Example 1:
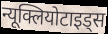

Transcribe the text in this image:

न्यूक्लियोटाइड्स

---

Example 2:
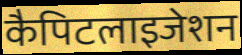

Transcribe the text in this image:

कैपिटलाइजेशन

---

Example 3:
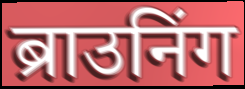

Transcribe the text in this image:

ब्राउनिंग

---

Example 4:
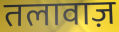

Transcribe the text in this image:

तलावाज़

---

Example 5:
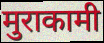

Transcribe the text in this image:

मुराकामी